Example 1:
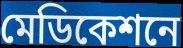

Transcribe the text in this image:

মেডিকেশনে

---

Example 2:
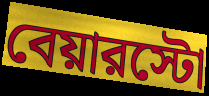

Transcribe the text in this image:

বেয়ারস্টো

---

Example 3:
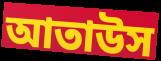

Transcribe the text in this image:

আতাউস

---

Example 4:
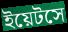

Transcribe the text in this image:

ইয়েটসে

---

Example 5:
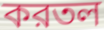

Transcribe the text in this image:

করতল